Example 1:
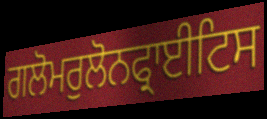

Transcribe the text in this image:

ਗਲੋਮਰੁਲੋਨਫ੍ਰਾਈਟਿਸ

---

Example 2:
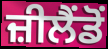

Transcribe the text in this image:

ਜ਼ੀਲੈਂਡੋਂ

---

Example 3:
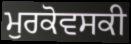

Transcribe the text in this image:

ਮੁਰਕੋਵਸਕੀ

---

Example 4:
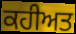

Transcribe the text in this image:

ਕਹੀਅਤ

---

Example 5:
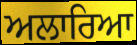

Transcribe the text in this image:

ਅਲਾਰਿਆ